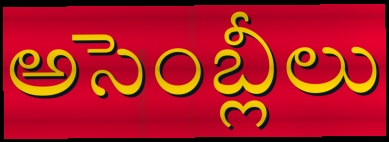
అసెంబ్లీలు